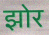
झोर